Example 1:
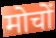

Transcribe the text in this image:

मोचों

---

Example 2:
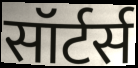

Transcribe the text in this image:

सॉर्टर्स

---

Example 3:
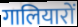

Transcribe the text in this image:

गालियारों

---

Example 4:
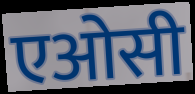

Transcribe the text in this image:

एओसी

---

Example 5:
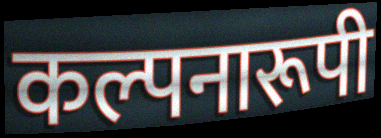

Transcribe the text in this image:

कल्पनारूपी